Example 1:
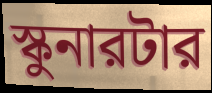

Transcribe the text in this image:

স্কুনারটার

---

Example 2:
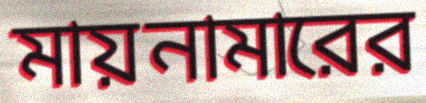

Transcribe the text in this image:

মায়নামারের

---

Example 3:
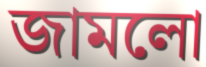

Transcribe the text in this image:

জামলো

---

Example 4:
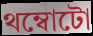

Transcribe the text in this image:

থম্বোটো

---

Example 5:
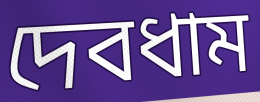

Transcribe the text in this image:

দেবধাম